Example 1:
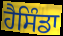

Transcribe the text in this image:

ਹੈਸਿੰਡਾ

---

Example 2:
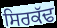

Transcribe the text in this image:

ਸਿਰਕੱਢ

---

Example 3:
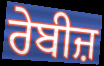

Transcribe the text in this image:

ਰੇਬੀਜ਼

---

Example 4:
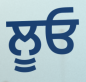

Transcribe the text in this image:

ਲੂਓ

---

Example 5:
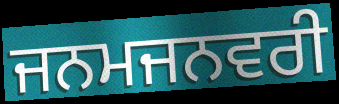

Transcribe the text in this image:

ਜਨਮਜਨਵਰੀ